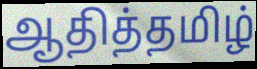
ஆதித்தமிழ்